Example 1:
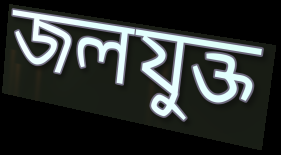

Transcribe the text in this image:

জলযুক্ত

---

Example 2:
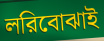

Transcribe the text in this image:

লরিবোঝাই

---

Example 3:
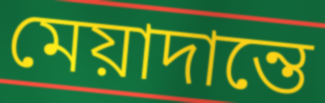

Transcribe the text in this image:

মেয়াদান্তে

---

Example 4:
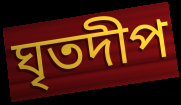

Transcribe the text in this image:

ঘৃতদীপ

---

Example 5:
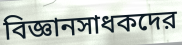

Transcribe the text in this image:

বিজ্ঞানসাধকদের